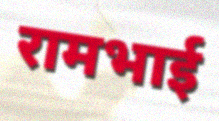
रामभाई